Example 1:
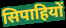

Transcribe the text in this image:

सिपाहियों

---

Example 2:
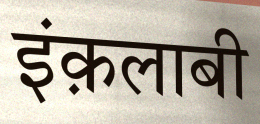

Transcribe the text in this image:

इंक़लाबी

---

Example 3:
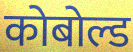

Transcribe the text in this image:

कोबोल्ड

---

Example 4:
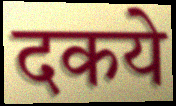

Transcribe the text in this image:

दकये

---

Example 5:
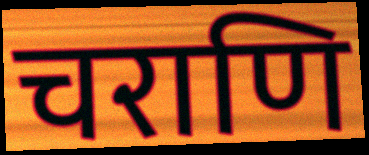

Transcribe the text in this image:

चराणि